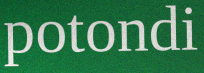
potondi